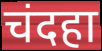
चंदहा